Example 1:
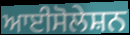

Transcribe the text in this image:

ਆਈਸੋਲੇਸ਼ਨ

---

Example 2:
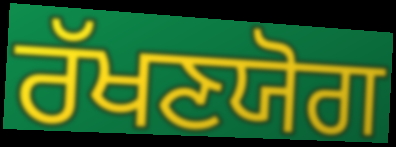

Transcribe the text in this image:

ਰੱਖਣਯੋਗ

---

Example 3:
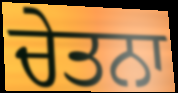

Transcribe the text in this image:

ਚੇਤਨਾ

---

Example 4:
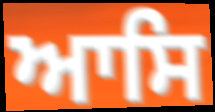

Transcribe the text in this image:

ਆਸਿ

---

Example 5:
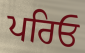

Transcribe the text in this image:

ਪਰਿਓ